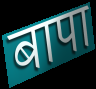
बापा